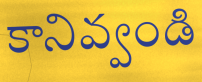
కానివ్వండి